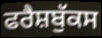
ਫਰੈਸ਼ਬੁੱਕਸ